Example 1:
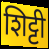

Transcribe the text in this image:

शिट्टी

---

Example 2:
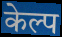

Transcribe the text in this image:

केल्प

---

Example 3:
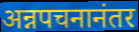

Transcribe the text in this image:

अन्नपचनानंतर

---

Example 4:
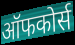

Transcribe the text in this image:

ऑफकोर्स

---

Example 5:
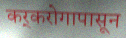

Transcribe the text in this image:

कर्करोगापासून